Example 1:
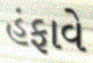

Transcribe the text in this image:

હંફાવે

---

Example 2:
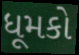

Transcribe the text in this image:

ધૂમકો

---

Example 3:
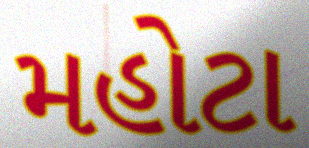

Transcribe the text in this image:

મહોટા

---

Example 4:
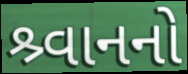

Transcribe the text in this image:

શ્ર્વાનનો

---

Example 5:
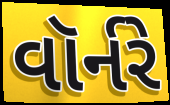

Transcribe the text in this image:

વૉર્નરે